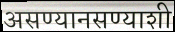
असण्यानसण्याशी